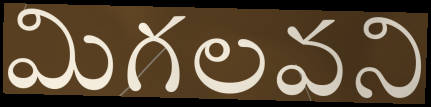
మిగలవని